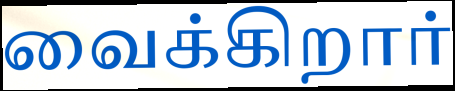
வைக்கிறார்